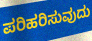
ಪರಿಹರಿಸುವುದು